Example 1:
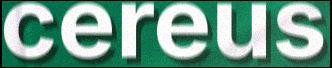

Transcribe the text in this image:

cereus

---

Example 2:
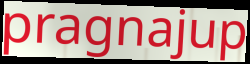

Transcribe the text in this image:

pragnajup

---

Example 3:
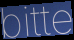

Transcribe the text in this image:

bitte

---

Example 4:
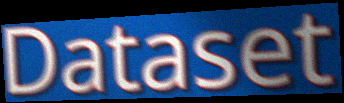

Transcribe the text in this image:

Dataset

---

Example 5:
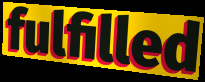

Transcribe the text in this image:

fulfilled